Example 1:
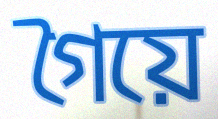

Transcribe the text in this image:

গৈয়ে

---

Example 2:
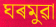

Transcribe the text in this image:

ঘৰমুৱা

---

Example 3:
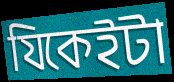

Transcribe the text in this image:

যিকেইটা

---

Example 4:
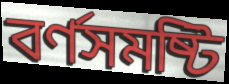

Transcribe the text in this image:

বৰ্ণসমষ্টি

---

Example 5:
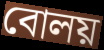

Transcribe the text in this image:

বোলয়